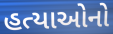
હત્યાઓનો